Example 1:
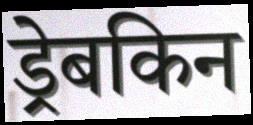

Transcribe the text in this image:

ड्रेबकिन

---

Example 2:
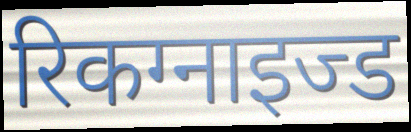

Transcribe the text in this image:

रिकग्नाइज्ड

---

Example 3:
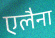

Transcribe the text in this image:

एलैना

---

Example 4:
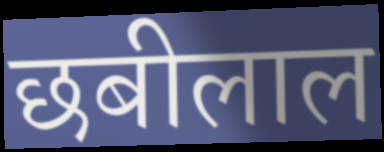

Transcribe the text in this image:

छबीलाल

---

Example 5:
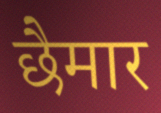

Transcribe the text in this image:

छैमार